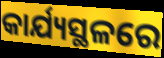
କାର୍ଯ୍ୟସ୍ଥଳରେ